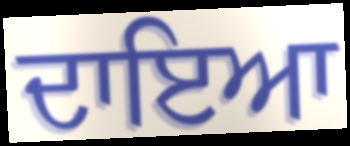
ਦਾਇਆ